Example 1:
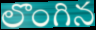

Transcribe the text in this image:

లొంగిన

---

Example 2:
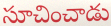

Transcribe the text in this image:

సూచించాడు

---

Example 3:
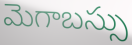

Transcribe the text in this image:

మెగాబస్సు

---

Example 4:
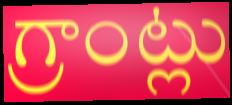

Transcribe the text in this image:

గ్రాంట్లు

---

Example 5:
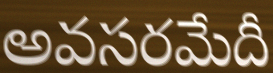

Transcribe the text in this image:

అవసరమేదీ